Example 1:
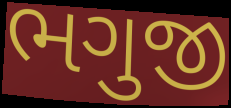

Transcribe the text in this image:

ભગુજી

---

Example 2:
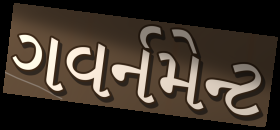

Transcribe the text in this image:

ગવર્નમેન્ટ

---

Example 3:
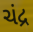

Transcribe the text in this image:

ચંદ્ર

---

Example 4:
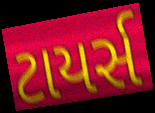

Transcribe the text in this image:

ટાયર્સ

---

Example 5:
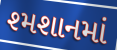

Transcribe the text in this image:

શ્મશાનમાં